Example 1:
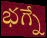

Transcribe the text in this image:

భగ్నే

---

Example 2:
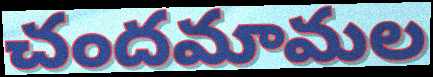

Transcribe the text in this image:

చందమామల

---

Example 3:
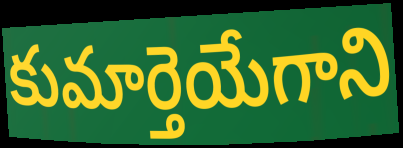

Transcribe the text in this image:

కుమార్తెయేగాని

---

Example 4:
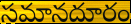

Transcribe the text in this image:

సమానదూరం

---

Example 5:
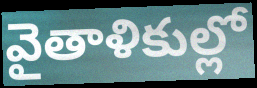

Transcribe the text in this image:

వైతాళికుల్లో